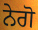
ਨੇਗੋ